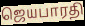
ஜெயபாரதி